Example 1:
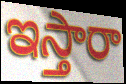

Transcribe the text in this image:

ఇస్తారా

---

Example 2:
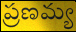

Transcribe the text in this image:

ప్రణమ్య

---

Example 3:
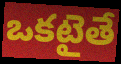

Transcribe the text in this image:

ఒకటైతే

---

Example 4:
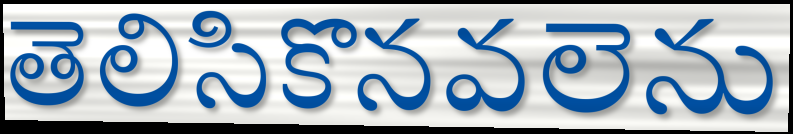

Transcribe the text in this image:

తెలిసికొనవలెను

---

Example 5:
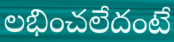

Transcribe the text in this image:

లభించలేదంటే